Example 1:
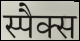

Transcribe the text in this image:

स्पैक्स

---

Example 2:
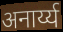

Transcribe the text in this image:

अनार्य्य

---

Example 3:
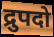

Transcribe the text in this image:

द्रुपदो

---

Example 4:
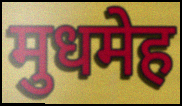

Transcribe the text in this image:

मुधमेह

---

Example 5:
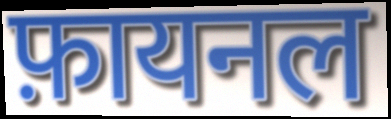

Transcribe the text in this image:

फ़ायनल